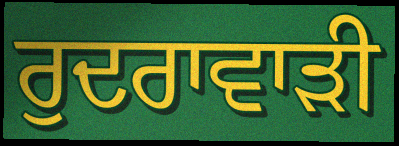
ਰੁਦਰਾਵਾੜੀ